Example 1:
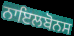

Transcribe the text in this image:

ਨਾਇਲਬੋਨਸ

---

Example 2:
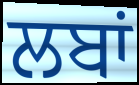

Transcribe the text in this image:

ਲਬਾਂ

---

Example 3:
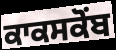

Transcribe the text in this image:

ਕਾਕਸਕੋਂਬ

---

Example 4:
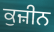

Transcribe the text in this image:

ਕੁਜ਼ੀਨ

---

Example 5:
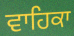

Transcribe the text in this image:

ਵਾਹਿਕਾ